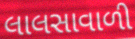
લાલસાવાળી